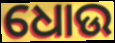
ଧୋଉ